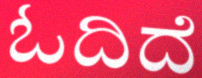
ಓದಿದೆ